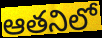
ఆతనిలో